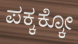
ಪಕ್ಕಕ್ಕೋ